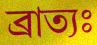
ব্রাত্যঃ